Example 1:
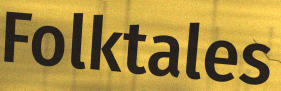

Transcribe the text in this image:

Folktales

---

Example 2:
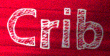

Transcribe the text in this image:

Crib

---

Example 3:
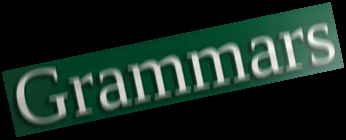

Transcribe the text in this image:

Grammars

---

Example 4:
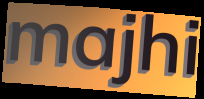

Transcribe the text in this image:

majhi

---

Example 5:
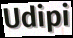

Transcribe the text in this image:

Udipi